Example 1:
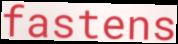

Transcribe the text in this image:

fastens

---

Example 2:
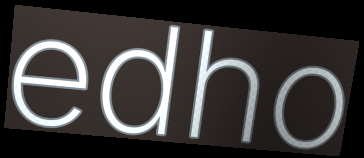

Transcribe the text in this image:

edho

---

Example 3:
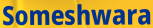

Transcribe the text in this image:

Someshwara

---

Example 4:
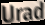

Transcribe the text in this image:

Urad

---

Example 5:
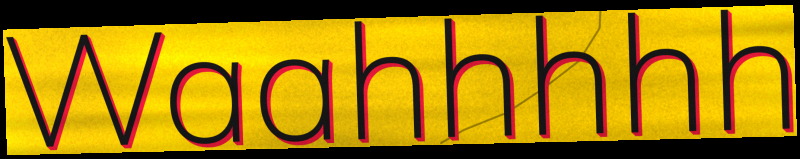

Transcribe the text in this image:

Waahhhhh